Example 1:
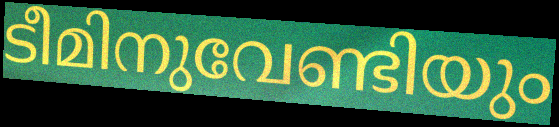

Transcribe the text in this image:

ടീമിനുവേണ്ടിയും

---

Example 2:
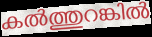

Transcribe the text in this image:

കൽത്തുറങ്കിൽ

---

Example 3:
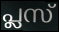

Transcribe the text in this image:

പ്ലസ്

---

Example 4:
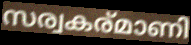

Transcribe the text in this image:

സര്വകര്മാണി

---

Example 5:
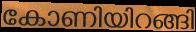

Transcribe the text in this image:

കോണിയിറങ്ങി